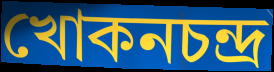
খোকনচন্দ্র